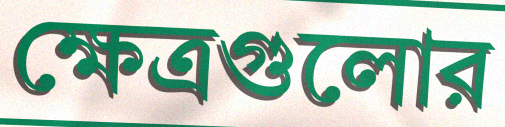
ক্ষেত্রগুলোর